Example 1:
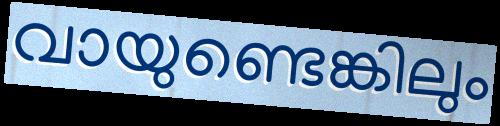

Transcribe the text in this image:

വായുണ്ടെങ്കിലും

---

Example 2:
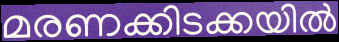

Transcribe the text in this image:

മരണക്കിടക്കയിൽ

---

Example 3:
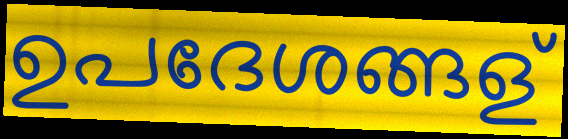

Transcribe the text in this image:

ഉപദേശങ്ങള്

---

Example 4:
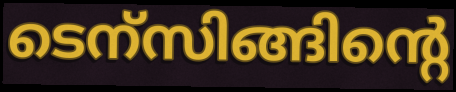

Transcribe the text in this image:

ടെന്സിങ്ങിന്റെ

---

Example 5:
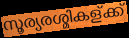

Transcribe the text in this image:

സൂര്യരശ്മികള്ക്ക്